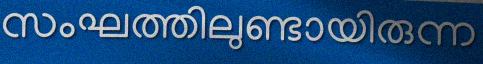
സംഘത്തിലുണ്ടായിരുന്ന